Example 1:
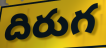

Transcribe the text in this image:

దిరుగ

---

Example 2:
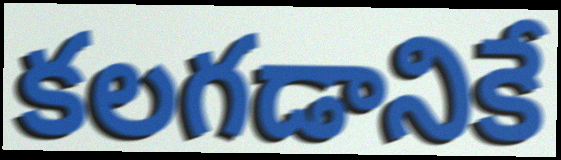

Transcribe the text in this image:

కలగడానికే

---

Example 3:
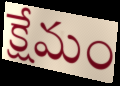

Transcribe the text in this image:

క్షేమం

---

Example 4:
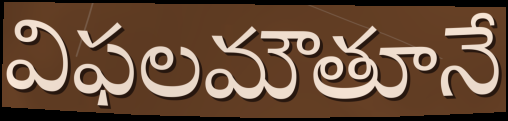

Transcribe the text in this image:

విఫలమౌతూనే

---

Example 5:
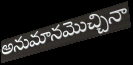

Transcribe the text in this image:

అనుమానమొచ్చినా